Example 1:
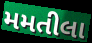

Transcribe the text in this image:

મમતીલા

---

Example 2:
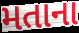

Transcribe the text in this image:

મતાના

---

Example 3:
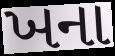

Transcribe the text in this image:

ખના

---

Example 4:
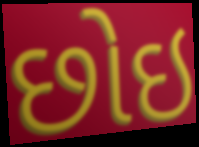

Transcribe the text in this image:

છોઇ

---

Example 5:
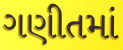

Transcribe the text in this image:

ગણીતમાં